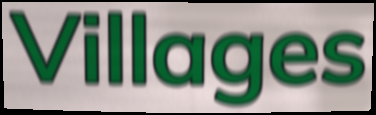
Villages